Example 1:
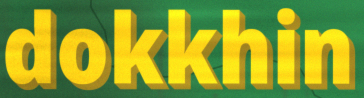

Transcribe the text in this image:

dokkhin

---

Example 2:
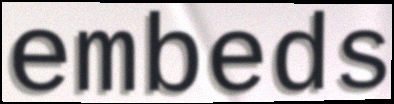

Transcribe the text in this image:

embeds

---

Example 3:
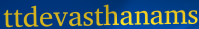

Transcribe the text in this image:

ttdevasthanams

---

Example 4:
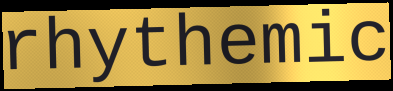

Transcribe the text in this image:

rhythemic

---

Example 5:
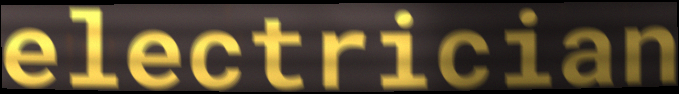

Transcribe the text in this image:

electrician